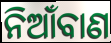
ନିଆଁବାଣ